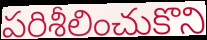
పరిశీలించుకొని